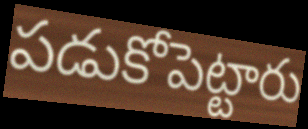
పడుకోపెట్టారు